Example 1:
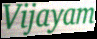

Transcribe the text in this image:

Vijayam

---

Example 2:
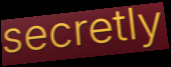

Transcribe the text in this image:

secretly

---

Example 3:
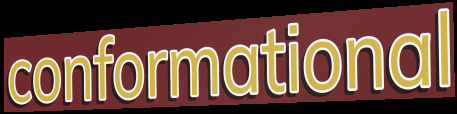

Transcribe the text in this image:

conformational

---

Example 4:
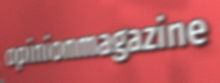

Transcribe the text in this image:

opinionmagazine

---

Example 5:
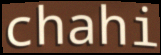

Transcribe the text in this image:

chahi